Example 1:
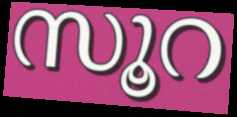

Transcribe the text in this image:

സൂറ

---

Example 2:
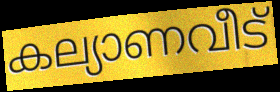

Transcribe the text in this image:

കല്യാണവീട്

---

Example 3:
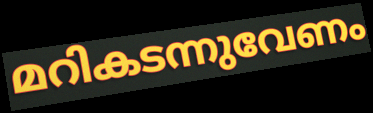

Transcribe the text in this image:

മറികടന്നുവേണം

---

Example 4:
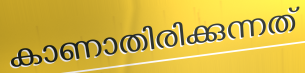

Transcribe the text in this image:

കാണാതിരിക്കുന്നത്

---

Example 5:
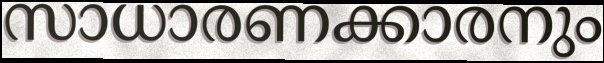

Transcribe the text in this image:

സാധാരണക്കാരനും